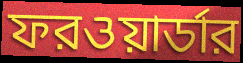
ফরওয়ার্ডার